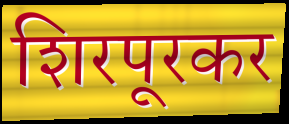
शिरपूरकर